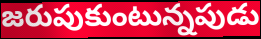
జరుపుకుంటున్నపుడు